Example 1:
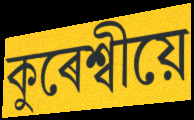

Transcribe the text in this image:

কুৰেশ্বীয়ে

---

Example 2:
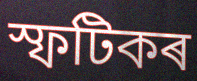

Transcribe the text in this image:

স্ফটিকৰ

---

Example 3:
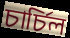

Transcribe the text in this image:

চাৰ্চিল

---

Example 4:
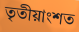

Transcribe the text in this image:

তৃতীয়াংশত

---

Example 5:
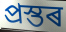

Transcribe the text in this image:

প্ৰস্তৰ